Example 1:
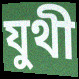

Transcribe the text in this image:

যুথী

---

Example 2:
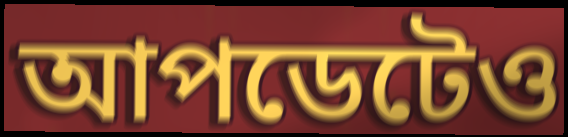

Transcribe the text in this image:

আপডেটেও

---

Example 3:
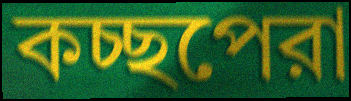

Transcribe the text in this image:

কচ্ছপেরা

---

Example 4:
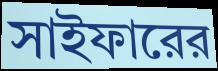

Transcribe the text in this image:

সাইফারের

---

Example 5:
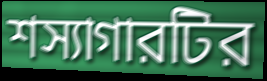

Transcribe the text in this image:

শস্যাগারটির